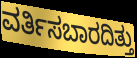
ವರ್ತಿಸಬಾರದಿತ್ತು